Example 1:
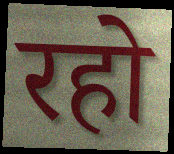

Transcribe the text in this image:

रहो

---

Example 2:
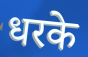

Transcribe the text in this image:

धरके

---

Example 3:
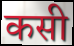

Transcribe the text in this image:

कसी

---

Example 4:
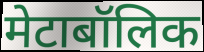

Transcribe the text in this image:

मेटाबॉलिक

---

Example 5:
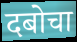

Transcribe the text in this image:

दबोचा